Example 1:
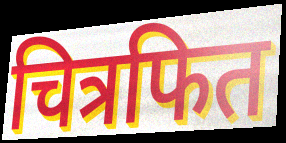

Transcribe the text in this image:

चित्रफित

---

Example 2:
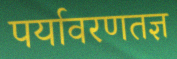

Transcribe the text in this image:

पर्यावरणतज्ञ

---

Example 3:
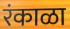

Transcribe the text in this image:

रंकाळा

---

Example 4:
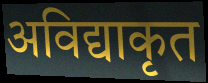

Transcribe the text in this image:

अविद्याकृत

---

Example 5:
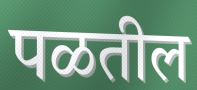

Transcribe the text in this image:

पळतील